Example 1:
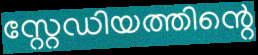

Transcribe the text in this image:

സ്റ്റേഡിയത്തിന്റെ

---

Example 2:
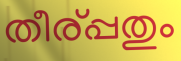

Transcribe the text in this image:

തീര്പ്പതും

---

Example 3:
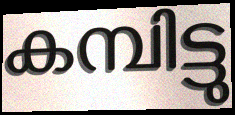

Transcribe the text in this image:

കമ്പിട്ടു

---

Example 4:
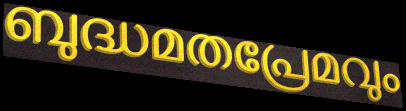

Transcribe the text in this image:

ബുദ്ധമതപ്രേമവും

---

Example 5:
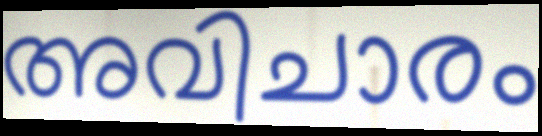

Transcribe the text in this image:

അവിചാരം